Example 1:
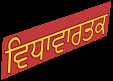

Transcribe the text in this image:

ਵਿਧਾਵਾਰਤਕ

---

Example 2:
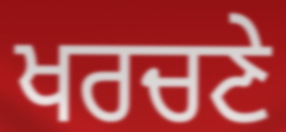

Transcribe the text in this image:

ਖਰਚਣੇ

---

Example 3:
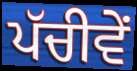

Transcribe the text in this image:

ਪੱਚੀਵੇਂ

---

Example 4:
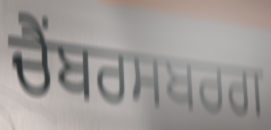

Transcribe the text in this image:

ਚੈਂਬਰਸਬਰਗ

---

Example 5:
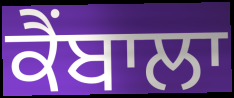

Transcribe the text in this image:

ਕੈਂਬਾਲਾ